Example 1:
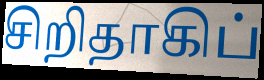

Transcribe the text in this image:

சிறிதாகிப்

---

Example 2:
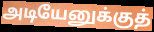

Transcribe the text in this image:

அடியேனுக்குத்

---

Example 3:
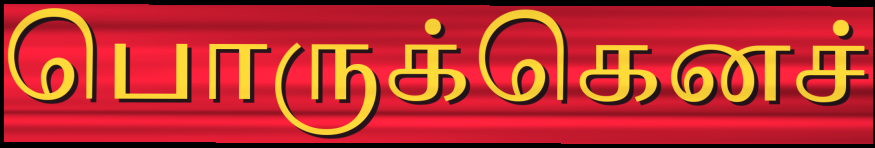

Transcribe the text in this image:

பொருக்கெனச்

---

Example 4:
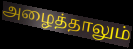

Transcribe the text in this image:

அழைத்தாலும்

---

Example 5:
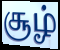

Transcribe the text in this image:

சூழ்